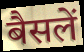
बैसलें